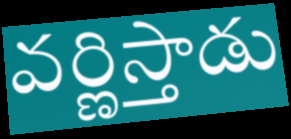
వర్ణిస్తాడు